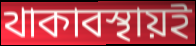
থাকাবস্থায়ই